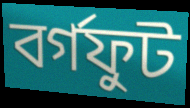
বর্গফুট